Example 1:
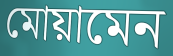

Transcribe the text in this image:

মোয়ামেন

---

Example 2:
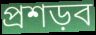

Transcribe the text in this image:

প্রশড়ব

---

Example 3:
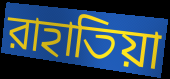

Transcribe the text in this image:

রাহাতিয়া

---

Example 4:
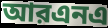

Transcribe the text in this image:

আরএনএ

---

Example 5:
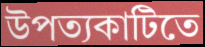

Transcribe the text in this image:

উপত্যকাটিতে